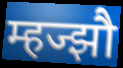
म्हज्झौ